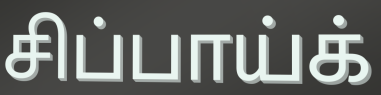
சிப்பாய்க்